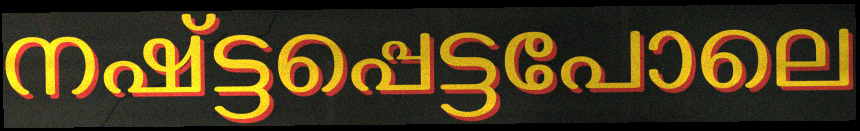
നഷ്ട്ടപ്പെട്ടപോലെ